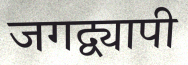
जगद्व्यापी